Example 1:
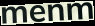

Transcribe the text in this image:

menm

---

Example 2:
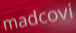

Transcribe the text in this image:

madcovi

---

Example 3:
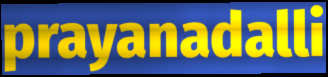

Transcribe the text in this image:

prayanadalli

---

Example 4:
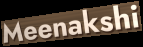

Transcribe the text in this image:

Meenakshi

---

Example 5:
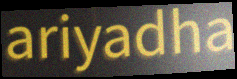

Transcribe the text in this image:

ariyadha